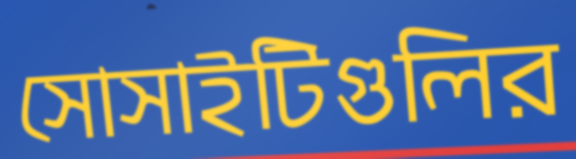
সোসাইটিগুলির